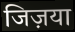
जिज़या